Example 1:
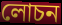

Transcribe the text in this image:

লোচন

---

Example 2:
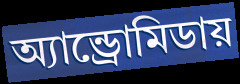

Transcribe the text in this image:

অ্যান্ড্রোমিডায়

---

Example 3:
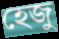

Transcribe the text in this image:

হেজু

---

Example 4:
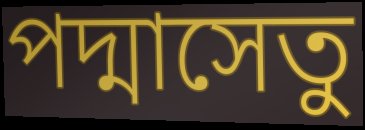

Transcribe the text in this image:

পদ্মাসেতু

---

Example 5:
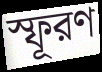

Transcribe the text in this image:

স্ফূরণ